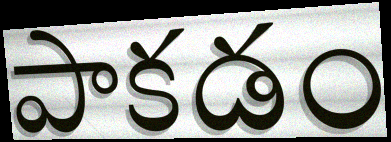
పాకడం